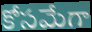
కోసమేగా